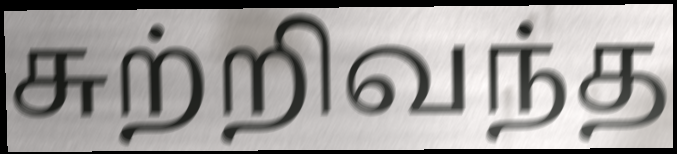
சுற்றிவந்த